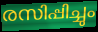
രസിപ്പിച്ചും